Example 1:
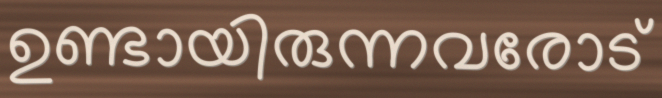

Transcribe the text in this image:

ഉണ്ടായിരുന്നവരോട്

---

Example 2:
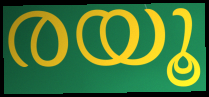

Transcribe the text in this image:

രയൂ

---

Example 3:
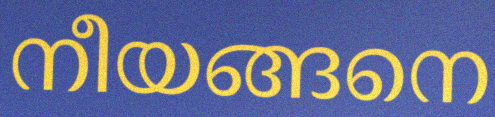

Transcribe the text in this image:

നീയങ്ങനെ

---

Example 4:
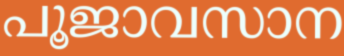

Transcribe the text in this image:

പൂജാവസാന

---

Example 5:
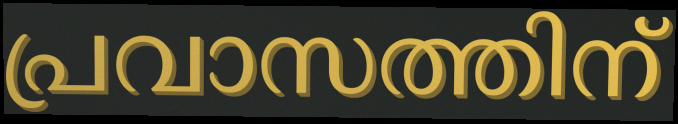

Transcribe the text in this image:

പ്രവാസത്തിന്